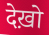
देख़ो